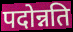
पदोन्नति